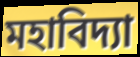
মহাবিদ্যা